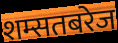
शम्सतबरेज